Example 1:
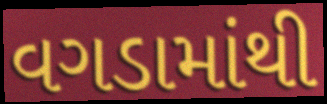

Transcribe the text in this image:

વગડામાંથી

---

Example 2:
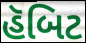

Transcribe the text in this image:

હૅબિટ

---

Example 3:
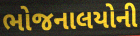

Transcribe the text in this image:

ભોજનાલયોની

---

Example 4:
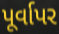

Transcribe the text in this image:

પૂર્વાપર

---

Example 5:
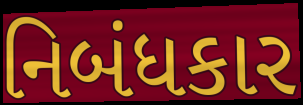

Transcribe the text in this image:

નિબંધકાર